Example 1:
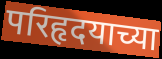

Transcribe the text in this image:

परिहृदयाच्या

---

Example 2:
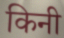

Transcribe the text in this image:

किनी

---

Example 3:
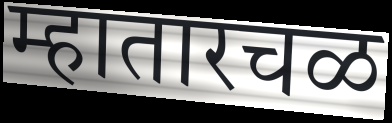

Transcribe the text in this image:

म्हातारचळ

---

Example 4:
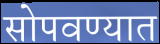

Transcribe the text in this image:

सोपवण्यात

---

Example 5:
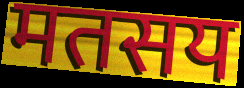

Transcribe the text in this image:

मतसय